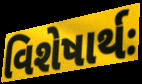
વિશેષાર્થઃ